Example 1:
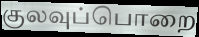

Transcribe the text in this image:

குலவுப்பொறை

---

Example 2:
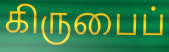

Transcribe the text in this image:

கிருபைப்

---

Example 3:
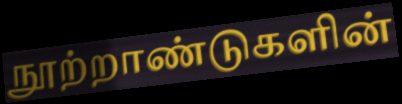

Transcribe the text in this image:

நூற்றாண்டுகளின்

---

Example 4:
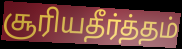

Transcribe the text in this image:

சூரியதீர்த்தம்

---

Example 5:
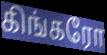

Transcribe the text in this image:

கிங்கரோ